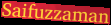
Saifuzzaman